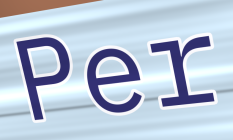
Per